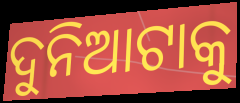
ଦୁନିଆଟାକୁ